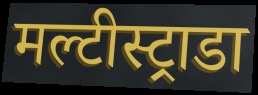
मल्टीस्ट्राडा